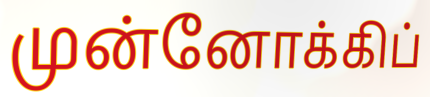
முன்னோக்கிப்